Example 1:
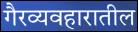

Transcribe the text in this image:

गैरव्यवहारातील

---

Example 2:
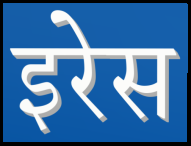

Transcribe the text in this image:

इरेस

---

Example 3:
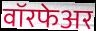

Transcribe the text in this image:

वॉरफेअर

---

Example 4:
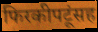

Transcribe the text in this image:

फिरकीपटूंसह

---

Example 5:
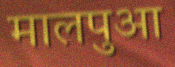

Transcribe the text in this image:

मालपुआ